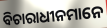
ବିଚାରାଧୀନମାନେ